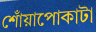
শোঁয়াপোকাটা